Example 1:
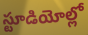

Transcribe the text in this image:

స్టూడియోల్లో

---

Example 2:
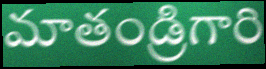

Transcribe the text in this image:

మాతండ్రిగారి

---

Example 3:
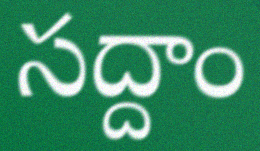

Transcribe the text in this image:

సద్దాం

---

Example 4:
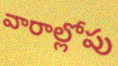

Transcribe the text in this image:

వారాల్లోపు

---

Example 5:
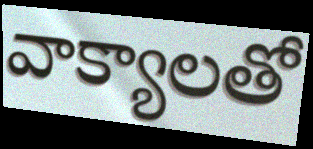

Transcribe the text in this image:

వాక్యాలతో